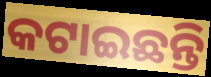
କଟାଇଛନ୍ତି